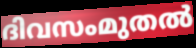
ദിവസംമുതൽ